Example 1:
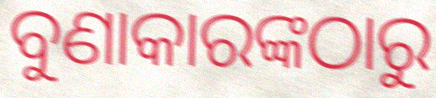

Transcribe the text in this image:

ବୁଣାକାରଙ୍କଠାରୁ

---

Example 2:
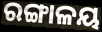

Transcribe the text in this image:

ରଙ୍ଗାଳୟ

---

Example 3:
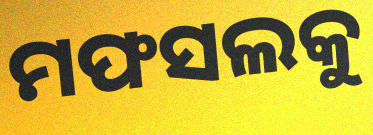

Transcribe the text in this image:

ମଫସଲକୁ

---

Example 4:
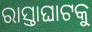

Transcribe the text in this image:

ରାସ୍ତାଘାଟକୁ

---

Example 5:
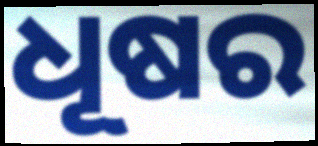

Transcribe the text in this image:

ଧୂଷର